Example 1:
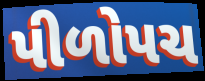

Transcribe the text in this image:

પીળોપચ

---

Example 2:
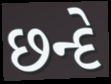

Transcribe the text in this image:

છન્દે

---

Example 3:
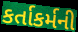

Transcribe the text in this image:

કર્તાકર્મની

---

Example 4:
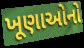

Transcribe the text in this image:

ખૂણાઓનો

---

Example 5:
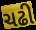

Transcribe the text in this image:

ચઢી